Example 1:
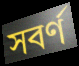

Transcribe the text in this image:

সবৰ্ণ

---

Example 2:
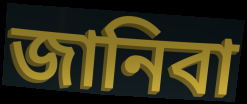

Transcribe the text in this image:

জানিবা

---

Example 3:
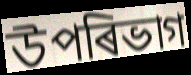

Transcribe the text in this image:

উপৰিভাগ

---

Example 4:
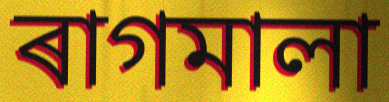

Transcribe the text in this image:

ৰাগমালা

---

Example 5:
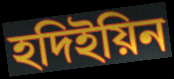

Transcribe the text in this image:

হদিইয়িন